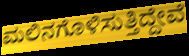
ಮಲಿನಗೊಳಿಸುತ್ತಿದ್ದೇವೆ